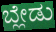
ಬ್ಲೇಡು